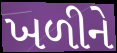
ખળીને